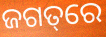
ଜଗତ୍‌ରେ